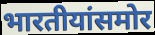
भारतीयांसमोर